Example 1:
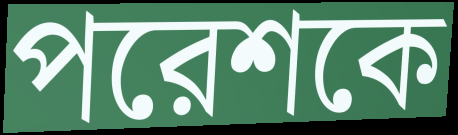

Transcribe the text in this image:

পরেশকে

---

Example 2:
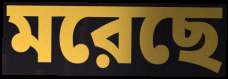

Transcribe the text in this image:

মরেছে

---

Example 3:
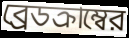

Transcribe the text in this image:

ব্রেডক্রাম্বের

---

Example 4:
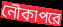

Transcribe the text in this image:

নৌকাপরে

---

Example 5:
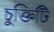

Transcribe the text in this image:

চুক্তিটি